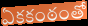
ఏకకంఠంతో